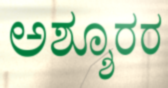
ಅಶ್ಶೂರರ